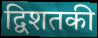
द्विशतकी